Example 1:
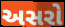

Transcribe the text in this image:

અસરો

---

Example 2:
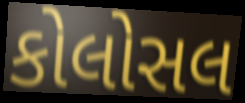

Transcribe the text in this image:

કોલોસલ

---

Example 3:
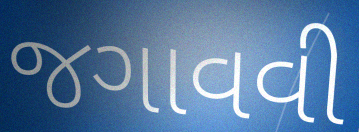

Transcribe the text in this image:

જગાવવી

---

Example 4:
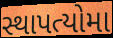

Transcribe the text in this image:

સ્થાપત્યોમા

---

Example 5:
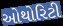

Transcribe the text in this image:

ઓથોરિટી